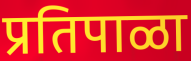
प्रतिपाळा